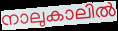
നാലുകാലിൽ